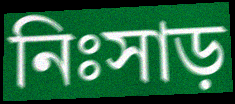
নিঃসাড়